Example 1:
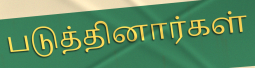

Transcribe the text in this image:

படுத்தினார்கள்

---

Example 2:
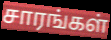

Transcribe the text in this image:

சாரங்கள்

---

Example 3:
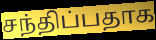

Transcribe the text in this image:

சந்திப்பதாக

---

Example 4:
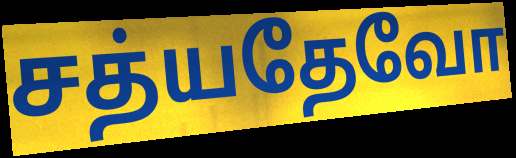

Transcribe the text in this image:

சத்யதேவோ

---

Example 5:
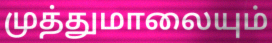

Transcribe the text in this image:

முத்துமாலையும்